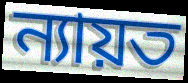
ন্যায়ত